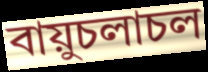
বায়ুচলাচল